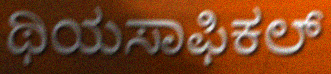
ಥಿಯಸಾಫಿಕಲ್